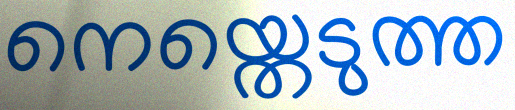
നെയ്തെടുത്ത